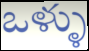
ఒళ్ళు